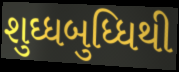
શુઘ્ધબુધ્ધિથી